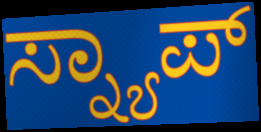
ಸ್ನ್ಯಾಪ್